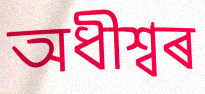
অধীশ্বৰ